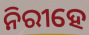
ନିରୀହେ